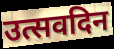
उत्सवदिन